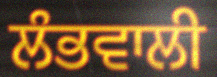
ਲੰਭਵਾਲੀ